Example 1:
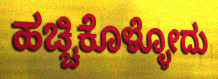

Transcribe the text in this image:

ಹಚ್ಚಿಕೊಳ್ಳೋದು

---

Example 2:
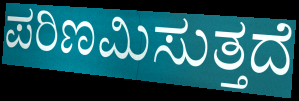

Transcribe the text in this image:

ಪರಿಣಮಿಸುತ್ತದೆ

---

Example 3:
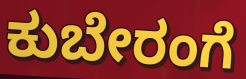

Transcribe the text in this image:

ಕುಬೇರಂಗೆ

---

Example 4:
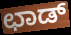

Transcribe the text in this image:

ಛಾಡ್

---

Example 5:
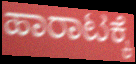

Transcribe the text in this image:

ಹಾರಾಟಕ್ಕೆ